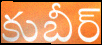
కుబీర్